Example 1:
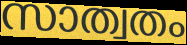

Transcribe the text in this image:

സാത്വതം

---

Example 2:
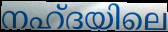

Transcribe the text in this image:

നഹ്ദയിലെ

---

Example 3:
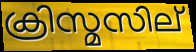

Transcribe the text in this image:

ക്രിസ്മസില്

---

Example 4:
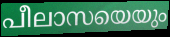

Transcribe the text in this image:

പീലാസയെയും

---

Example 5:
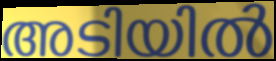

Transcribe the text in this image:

അടിയിൽ